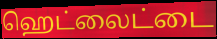
ஹெட்லைட்டை